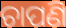
ଚାପଣି